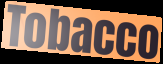
Tobacco